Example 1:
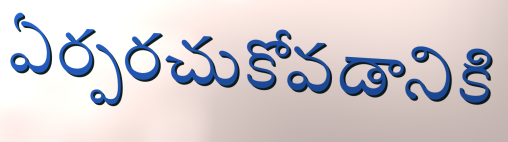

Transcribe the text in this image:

ఏర్పరచుకోవడానికి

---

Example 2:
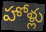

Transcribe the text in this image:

హోళ్లు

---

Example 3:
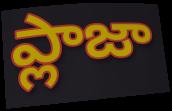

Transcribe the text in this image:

ప్లాజా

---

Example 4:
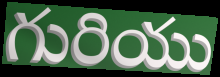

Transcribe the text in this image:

గురియు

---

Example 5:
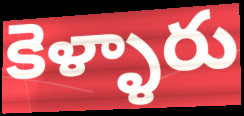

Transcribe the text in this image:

కెళ్ళారు